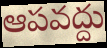
ఆపవద్దు